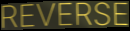
REVERSE